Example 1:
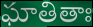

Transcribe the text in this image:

ఘాతితాః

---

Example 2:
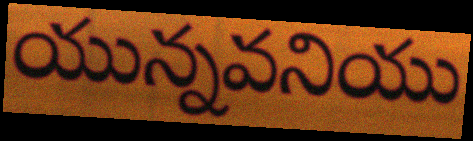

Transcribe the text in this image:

యున్నవనియు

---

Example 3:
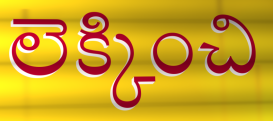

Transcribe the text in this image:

లెక్కించి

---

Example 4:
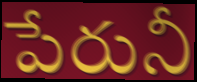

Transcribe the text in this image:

పేరునీ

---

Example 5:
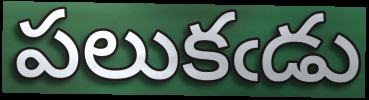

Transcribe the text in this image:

పలుకఁడు